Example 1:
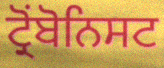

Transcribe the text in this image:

ਟ੍ਰੋਂਬੋਨਿਸਟ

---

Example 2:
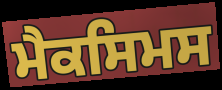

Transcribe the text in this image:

ਮੈਕਸਿਮਸ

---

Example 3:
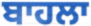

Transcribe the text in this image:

ਬਾਹਲਾ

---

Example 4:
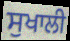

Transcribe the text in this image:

ਸੁਖਾਲੀ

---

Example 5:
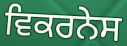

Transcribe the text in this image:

ਵਿਕਰਨੇਸ